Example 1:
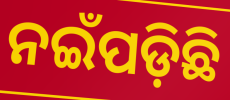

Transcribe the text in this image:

ନଇଁପଡ଼ିଛି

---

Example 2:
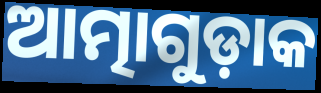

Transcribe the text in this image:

ଆତ୍ମାଗୁଡ଼ାକ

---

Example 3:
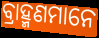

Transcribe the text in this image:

ବ୍ରାହ୍ମଣମାନେ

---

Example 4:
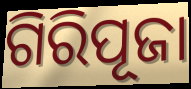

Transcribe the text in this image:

ଗିରିପୂଜା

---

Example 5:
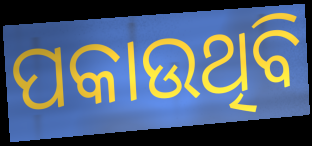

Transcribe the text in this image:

ପକାଉଥିବି